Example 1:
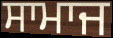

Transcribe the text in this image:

ਸਾਮਾਜ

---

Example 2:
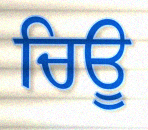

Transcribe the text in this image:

ਚਿਊ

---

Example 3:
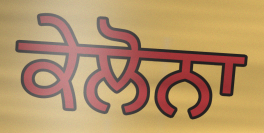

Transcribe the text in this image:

ਕੇਲੋਨਾ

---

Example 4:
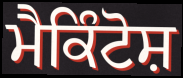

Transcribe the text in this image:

ਮੈਕਿੰਟੋਸ਼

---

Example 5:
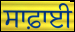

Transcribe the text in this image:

ਸਾਫ਼ਾਈ